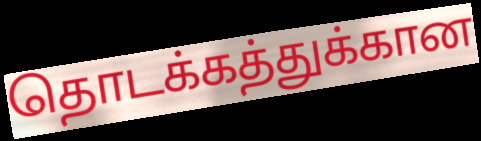
தொடக்கத்துக்கான